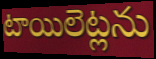
టాయిలెట్లను